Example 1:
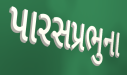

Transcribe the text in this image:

પારસપ્રભુના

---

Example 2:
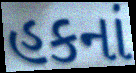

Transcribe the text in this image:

હકનાં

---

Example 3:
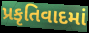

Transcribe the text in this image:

પ્રકૃતિવાદમાં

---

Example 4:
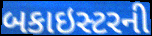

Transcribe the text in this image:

બકાઇસ્ટરની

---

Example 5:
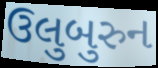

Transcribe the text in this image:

ઉલુબુરુન